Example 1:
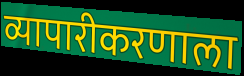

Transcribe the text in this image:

व्यापारीकरणाला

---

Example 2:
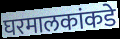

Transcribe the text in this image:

घरमालकांकडे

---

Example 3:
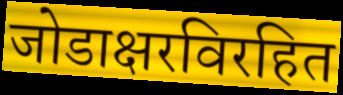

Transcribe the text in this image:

जोडाक्षरविरहित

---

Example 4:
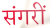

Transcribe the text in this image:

संगरीं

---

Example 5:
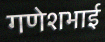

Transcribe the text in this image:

गणेशभाई